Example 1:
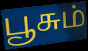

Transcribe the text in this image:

பூசும்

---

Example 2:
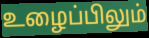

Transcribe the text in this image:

உழைப்பிலும்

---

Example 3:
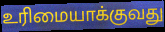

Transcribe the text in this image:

உரிமையாக்குவது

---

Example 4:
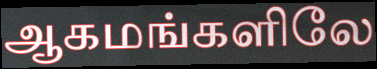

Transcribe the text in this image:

ஆகமங்களிலே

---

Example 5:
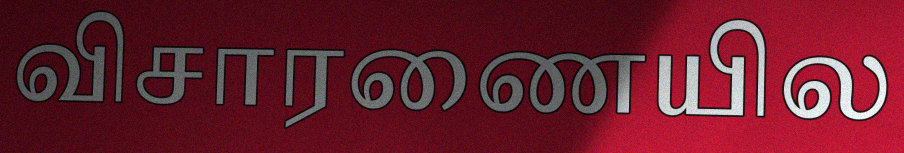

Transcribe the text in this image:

விசாரணையில